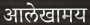
आलेखामय